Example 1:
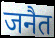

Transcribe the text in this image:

जनैत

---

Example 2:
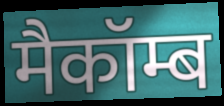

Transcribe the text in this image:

मैकॉम्ब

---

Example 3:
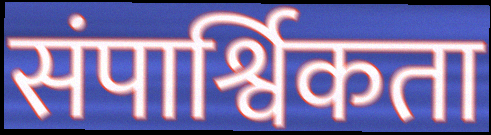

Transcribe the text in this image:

संपार्श्विकता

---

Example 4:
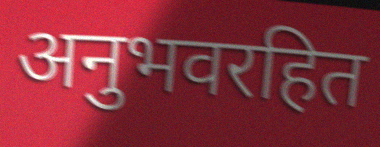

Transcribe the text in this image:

अनुभवरहित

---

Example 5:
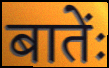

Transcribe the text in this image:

बातेंः